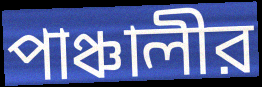
পাঞ্চালীর